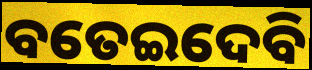
ବତେଇଦେବି